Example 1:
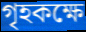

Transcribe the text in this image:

গৃহকক্ষে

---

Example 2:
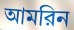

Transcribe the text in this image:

আমরিন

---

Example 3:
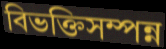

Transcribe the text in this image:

বিভক্তিসম্পন্ন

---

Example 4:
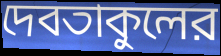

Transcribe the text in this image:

দেবতাকুলের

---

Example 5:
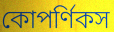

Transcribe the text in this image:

কোপর্ণিকস